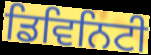
ਡਿਵਿਨਿਟੀ